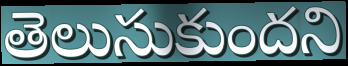
తెలుసుకుందని